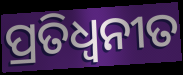
ପ୍ରତିଧ୍ବନୀତ